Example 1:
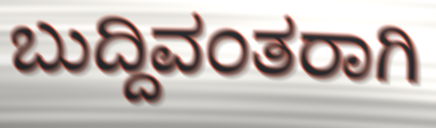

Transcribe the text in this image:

ಬುದ್ದಿವಂತರಾಗಿ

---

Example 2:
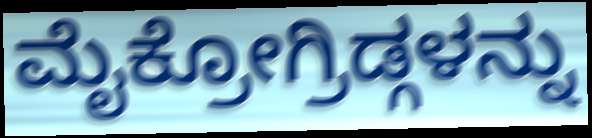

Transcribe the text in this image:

ಮೈಕ್ರೋಗ್ರಿಡ್ಗಳನ್ನು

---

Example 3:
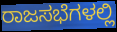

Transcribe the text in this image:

ರಾಜಸಭೆಗಳಲ್ಲಿ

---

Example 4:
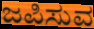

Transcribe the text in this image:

ಜಪಿಸುವ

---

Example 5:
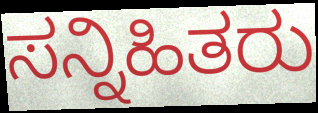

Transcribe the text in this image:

ಸನ್ನಿಹಿತರು